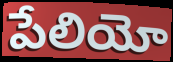
పేలియో